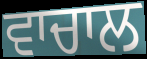
ਵਾਚਾਲ